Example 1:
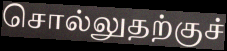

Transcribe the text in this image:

சொல்லுதற்குச்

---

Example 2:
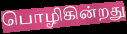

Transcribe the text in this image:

பொழிகின்றது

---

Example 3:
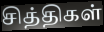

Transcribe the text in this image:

சித்திகள்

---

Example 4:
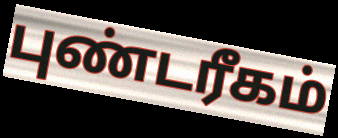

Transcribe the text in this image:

புண்டரீகம்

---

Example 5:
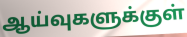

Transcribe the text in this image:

ஆய்வுகளுக்குள்